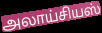
அலாய்சியஸ்